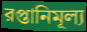
রপ্তানিমূল্য